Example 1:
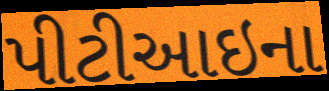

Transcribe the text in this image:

પીટીઆઇના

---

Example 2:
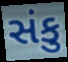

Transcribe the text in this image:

સંકુ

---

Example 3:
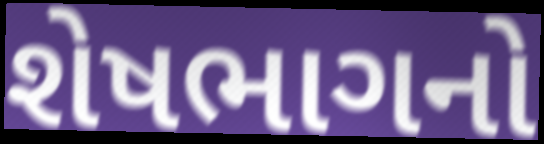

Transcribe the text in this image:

શેષભાગનો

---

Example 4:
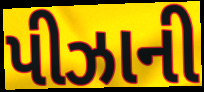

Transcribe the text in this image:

પીઝાની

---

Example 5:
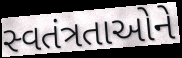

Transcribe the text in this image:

સ્વતંત્રતાઓને